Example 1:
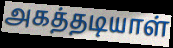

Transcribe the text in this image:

அகத்தடியாள்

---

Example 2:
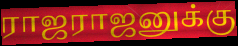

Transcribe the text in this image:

ராஜராஜனுக்கு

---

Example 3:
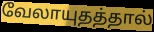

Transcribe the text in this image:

வேலாயுதத்தால்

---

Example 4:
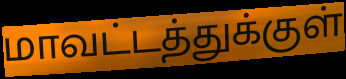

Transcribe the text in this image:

மாவட்டத்துக்குள்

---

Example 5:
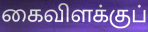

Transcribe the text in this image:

கைவிளக்குப்